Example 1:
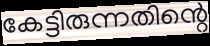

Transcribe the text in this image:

കേട്ടിരുന്നതിന്റെ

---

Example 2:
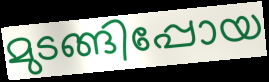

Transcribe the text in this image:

മുടങ്ങിപ്പോയ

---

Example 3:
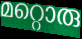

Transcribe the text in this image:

മറ്റൊരു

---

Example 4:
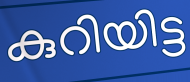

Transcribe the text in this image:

കുറിയിട്ട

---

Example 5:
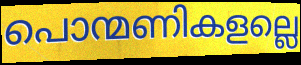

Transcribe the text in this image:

പൊന്മണികളല്ലെ